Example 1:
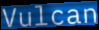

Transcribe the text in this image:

Vulcan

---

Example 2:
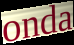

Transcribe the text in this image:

onda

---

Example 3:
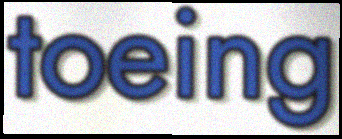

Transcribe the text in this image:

toeing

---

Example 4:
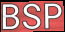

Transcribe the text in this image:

BSP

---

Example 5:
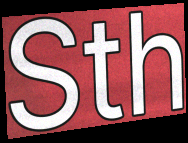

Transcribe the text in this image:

Sth